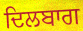
ਦਿਲਬਾਗ